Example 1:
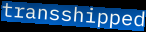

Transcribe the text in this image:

transshipped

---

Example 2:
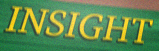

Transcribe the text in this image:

INSIGHT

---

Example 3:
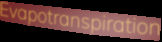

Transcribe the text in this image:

Evapotranspiration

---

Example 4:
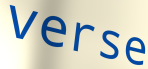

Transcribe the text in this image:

verse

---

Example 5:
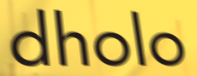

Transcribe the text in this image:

dholo